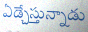
ఏడ్చేస్తున్నాడు